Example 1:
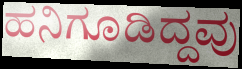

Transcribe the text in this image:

ಹನಿಗೂಡಿದ್ದವು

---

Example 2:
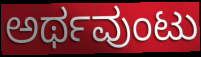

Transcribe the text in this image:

ಅರ್ಥವುಂಟು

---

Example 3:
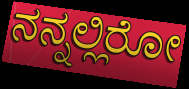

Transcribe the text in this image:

ನನ್ನಲ್ಲಿರೋ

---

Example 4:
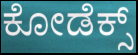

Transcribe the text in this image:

ಕೋಡೆಕ್ಸ್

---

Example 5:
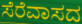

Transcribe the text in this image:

ಸೆರೆವಾಸದ